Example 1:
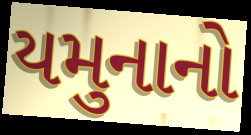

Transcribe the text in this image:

યમુનાનો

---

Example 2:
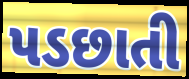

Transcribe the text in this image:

પડછાતી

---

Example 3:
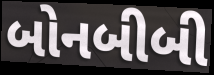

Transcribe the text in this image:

બોનબીબી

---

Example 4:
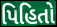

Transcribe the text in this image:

પિહિતો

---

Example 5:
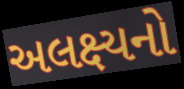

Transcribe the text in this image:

અલક્ષ્યનો